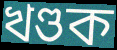
খণ্ডক